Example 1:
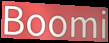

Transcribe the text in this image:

Boomi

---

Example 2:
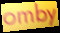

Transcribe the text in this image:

omby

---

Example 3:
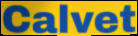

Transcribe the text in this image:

Calvet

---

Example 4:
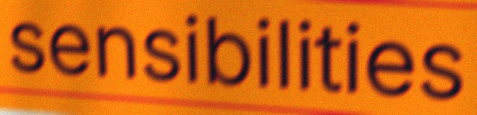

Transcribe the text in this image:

sensibilities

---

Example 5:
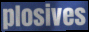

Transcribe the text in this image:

plosives